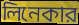
লিনেকার